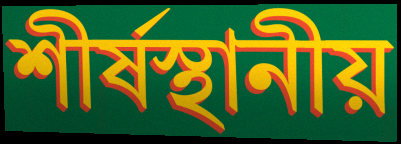
শীর্ষস্থানীয়